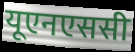
यूएनएससी